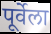
पूर्वेला